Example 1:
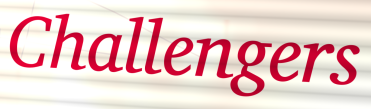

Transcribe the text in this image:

Challengers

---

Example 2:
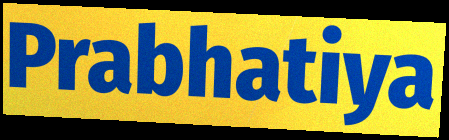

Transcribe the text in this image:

Prabhatiya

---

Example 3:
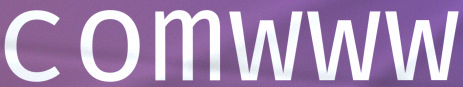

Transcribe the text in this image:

comwww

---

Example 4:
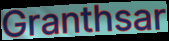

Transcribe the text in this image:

Granthsar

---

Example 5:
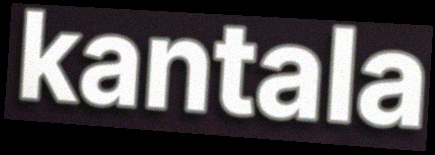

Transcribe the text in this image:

kantala